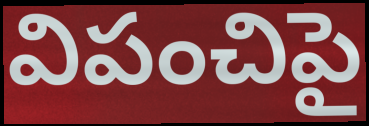
విపంచిపై